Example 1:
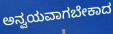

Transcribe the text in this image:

ಅನ್ವಯವಾಗಬೇಕಾದ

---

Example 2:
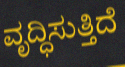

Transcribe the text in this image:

ವೃದ್ಧಿಸುತ್ತಿದೆ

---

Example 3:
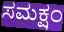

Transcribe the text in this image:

ಸಮಕ್ಷಂ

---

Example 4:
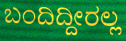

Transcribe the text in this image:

ಬಂದಿದ್ದೀರಲ್ಲ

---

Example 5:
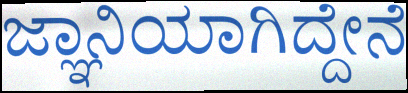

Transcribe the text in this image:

ಜ್ಞಾನಿಯಾಗಿದ್ದೇನೆ